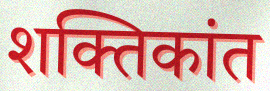
शक्तिकांत